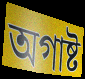
অগাষ্ট